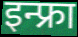
इन्फ्रा